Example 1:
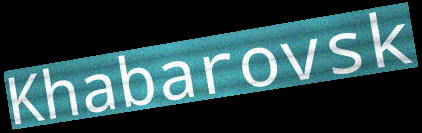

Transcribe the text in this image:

Khabarovsk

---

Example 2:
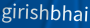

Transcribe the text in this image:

girishbhai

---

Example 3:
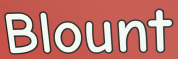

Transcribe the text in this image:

Blount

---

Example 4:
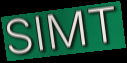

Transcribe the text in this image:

SIMT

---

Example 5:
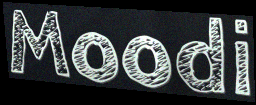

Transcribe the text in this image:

Moodi